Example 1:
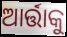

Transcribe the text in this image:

ଆର୍ତ୍ତାକୁ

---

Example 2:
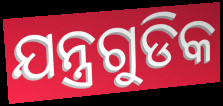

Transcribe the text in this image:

ଯନ୍ତ୍ରଗୁଡିକ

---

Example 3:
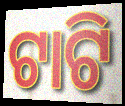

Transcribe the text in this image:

ଟାଟି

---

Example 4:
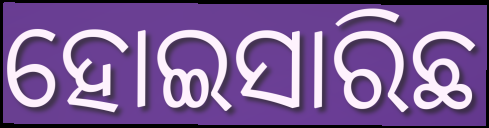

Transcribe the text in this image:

ହୋଇସାରିଛ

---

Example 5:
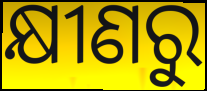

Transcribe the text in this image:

କ୍ଷୀଣରୁ